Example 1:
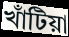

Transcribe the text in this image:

খাঁটিয়া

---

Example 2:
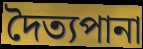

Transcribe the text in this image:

দৈত্যপানা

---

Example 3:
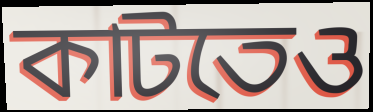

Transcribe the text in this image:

কাটতেও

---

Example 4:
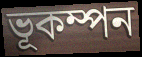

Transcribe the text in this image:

ভূকম্পন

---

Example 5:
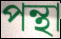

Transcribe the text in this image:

পন্থা